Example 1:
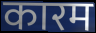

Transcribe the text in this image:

कारम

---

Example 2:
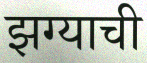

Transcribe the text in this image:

झग्याची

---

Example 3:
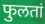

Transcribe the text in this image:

फुलतां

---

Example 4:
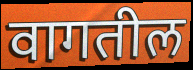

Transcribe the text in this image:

वागतील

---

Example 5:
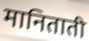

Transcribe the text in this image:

मानिताती